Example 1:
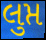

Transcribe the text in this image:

લુપ્ત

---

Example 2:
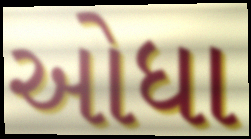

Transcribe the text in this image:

ઓધા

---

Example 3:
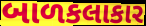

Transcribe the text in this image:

બાળકલાકાર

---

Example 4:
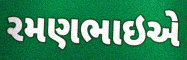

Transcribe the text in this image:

રમણભાઇએ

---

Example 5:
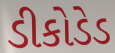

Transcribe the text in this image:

ડીકોડેડ